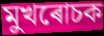
মুখৰোচক